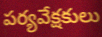
పర్యవేక్షకులు